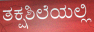
ತಕ್ಷಶಿಲೆಯಲ್ಲಿ